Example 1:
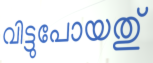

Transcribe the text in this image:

വിട്ടുപോയതു്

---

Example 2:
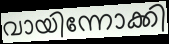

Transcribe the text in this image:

വായിന്നോക്കി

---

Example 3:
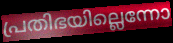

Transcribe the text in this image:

പ്രതിഭയില്ലെന്നോ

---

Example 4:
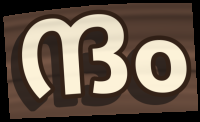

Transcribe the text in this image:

ന്ദം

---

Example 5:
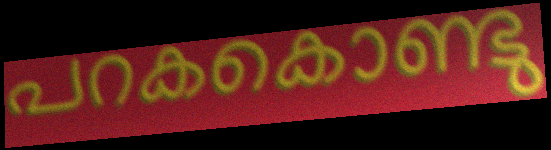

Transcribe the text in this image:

പറകകൊണ്ടു